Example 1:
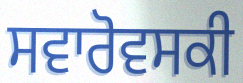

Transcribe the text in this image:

ਸਵਾਰੋਵਸਕੀ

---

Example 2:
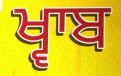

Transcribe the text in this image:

ਖ੍ਵਾਬ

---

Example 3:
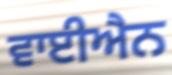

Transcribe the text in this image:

ਵਾਈਐਨ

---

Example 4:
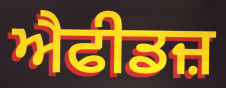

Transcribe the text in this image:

ਐਫੀਡਜ਼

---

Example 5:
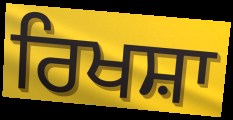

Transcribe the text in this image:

ਰਿਖਸ਼ਾ